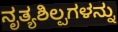
ನೃತ್ಯಶಿಲ್ಪಗಳನ್ನು